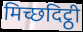
मिच्छदिट्ठी